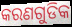
କରଣଗୁଡିକ